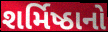
શર્મિષ્ઠાનો